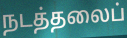
நடத்தலைப்